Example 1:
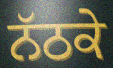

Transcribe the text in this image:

ਨੱਠਕੇ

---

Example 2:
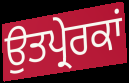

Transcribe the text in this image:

ਉਤਪ੍ਰੇਰਕਾਂ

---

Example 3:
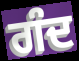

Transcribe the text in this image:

ਗੰਦ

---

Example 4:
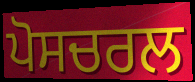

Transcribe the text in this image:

ਪੋਸਚਰਲ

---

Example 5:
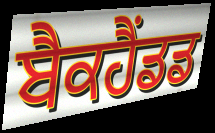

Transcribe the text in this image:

ਬੈਕਹੈਂਡਡ